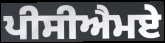
ਪੀਸੀਐਮਏ